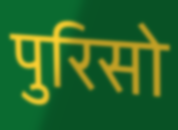
पुरिसो